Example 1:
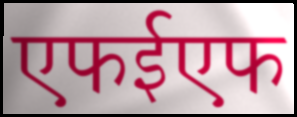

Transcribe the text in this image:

एफईएफ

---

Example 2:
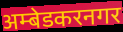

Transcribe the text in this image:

अम्बेडकरनगर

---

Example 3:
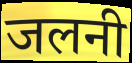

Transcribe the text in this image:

जलनी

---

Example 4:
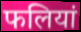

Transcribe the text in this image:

फलियां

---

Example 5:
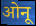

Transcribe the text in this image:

ओनू